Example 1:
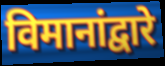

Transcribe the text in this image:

विमानांद्वारे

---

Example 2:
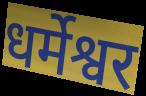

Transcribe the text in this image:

धर्मेश्वर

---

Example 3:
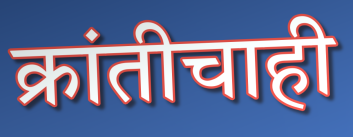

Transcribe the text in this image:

क्रांतीचाही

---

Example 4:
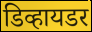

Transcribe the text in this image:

डिव्हायडर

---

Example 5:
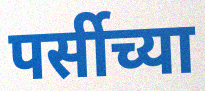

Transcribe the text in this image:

पर्सीच्या